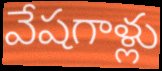
వేషగాళ్లు